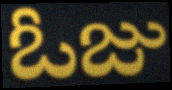
ఓజు